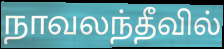
நாவலந்தீவில்